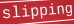
slipping